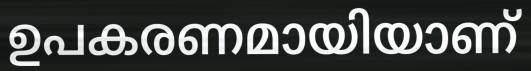
ഉപകരണമായിയാണ്